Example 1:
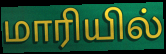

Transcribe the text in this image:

மாரியில்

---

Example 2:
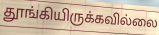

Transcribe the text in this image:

தூங்கியிருக்கவில்லை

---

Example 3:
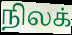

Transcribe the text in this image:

நிலக்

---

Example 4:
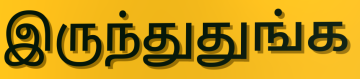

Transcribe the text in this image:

இருந்துதுங்க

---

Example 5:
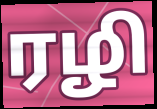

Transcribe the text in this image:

ரழி